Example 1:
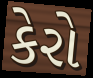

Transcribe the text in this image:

કેરો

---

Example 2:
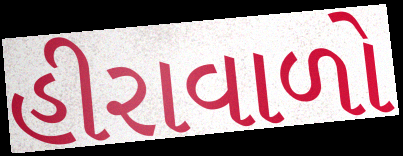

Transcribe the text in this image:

હીરાવાળો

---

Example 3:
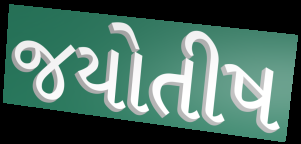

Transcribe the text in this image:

જયોતીષ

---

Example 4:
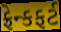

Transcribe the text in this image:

ફ્રેન્કફર્ટ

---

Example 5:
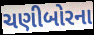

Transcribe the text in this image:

ચણીબોરના